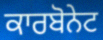
ਕਾਰਬੋਨੇਟ